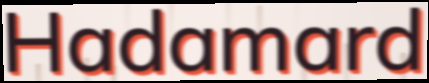
Hadamard